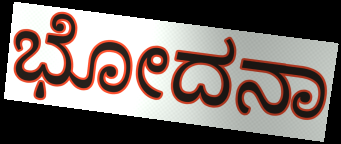
ಭೋದನಾ